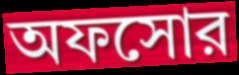
অফসোর